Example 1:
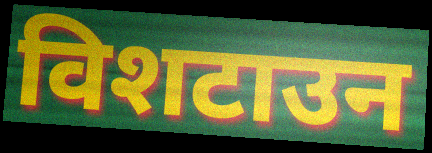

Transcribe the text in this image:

विशटाउन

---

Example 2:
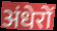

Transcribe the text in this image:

अंधेरों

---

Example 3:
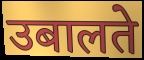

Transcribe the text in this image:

उबालते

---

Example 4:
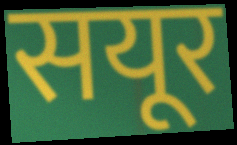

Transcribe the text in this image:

सयूर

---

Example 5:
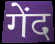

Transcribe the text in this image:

गेंद